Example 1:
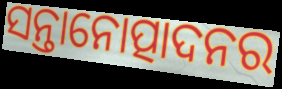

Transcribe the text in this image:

ସନ୍ତାନୋତ୍ପାଦନର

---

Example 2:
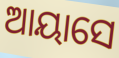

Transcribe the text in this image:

ଆୟାସେ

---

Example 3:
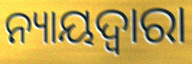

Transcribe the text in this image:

ନ୍ୟାୟଦ୍ୱାରା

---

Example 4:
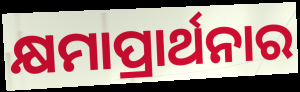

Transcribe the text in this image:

କ୍ଷମାପ୍ରାର୍ଥନାର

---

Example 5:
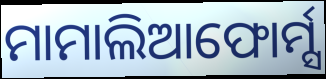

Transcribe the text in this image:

ମାମାଲିଆଫୋର୍ମ୍ସ